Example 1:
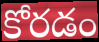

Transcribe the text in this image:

కోరడం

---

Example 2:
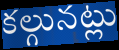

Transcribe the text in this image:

కల్గునట్లు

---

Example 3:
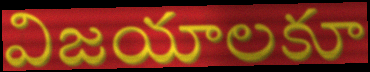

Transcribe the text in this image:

విజయాలకూ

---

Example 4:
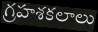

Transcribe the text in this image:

గ్రహశకలాలు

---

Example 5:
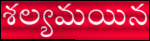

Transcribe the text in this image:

శల్యమయిన